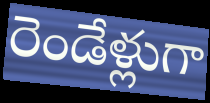
రెండేళ్లుగా